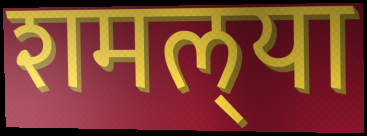
शमल्या